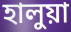
হালুয়া